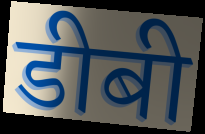
डीबी